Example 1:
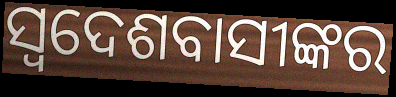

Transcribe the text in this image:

ସ୍ୱଦେଶବାସୀଙ୍କର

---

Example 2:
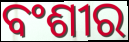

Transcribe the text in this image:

ବଂଶୀର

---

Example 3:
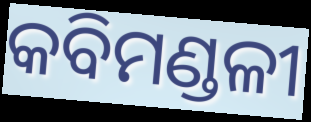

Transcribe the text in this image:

କବିମଣ୍ଡଳୀ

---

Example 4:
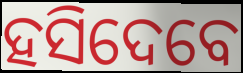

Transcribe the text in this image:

ହସିଦେବେ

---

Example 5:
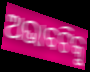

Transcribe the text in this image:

ଅଭାବଟିକୁ